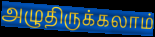
அழுதிருக்கலாம்